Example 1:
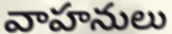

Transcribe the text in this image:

వాహనులు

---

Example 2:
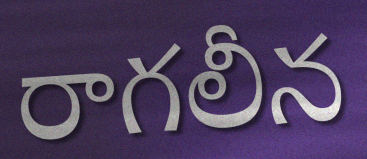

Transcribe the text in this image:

రాగలీన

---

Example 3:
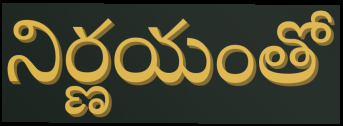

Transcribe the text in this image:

నిర్ణయంతో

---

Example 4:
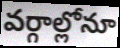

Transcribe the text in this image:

వర్గాల్లోనూ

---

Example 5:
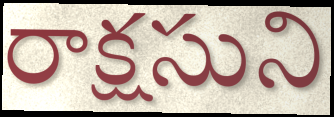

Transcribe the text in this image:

రాక్షసుని